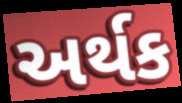
અર્થક